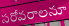
సరోవరాలనూ